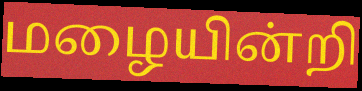
மழையின்றி